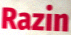
Razin